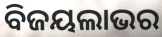
ବିଜୟଲାଭର